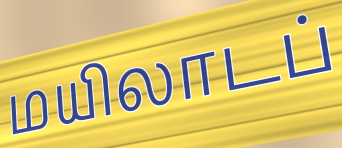
மயிலாடப்